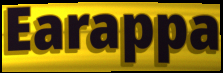
Earappa